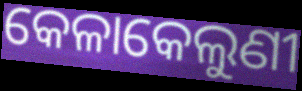
କେଳାକେଲୁଣୀ